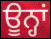
ਊਨ੍ਹਾਂ